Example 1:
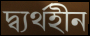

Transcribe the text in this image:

দ্ব্যৰ্থহীন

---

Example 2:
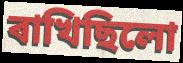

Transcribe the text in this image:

ৰাখিছিলো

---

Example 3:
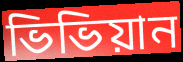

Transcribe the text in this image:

ভিভিয়ান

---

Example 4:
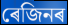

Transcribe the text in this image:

ৰেজিনৰ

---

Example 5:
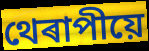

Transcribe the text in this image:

থেৰাপীয়ে